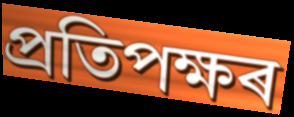
প্ৰতিপক্ষৰ